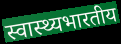
स्वास्थ्यभारतीय